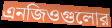
এনজিওগুলোর